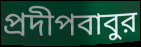
প্রদীপবাবুর